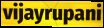
vijayrupani